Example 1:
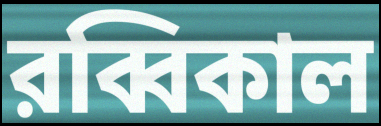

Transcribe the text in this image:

রব্বিকাল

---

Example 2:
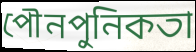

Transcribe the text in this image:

পৌনপুনিকতা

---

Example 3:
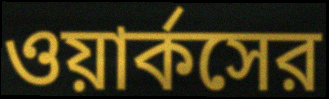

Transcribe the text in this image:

ওয়ার্কসের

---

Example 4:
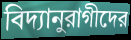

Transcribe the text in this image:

বিদ্যানুরাগীদের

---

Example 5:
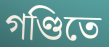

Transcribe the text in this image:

গণ্ডিতে